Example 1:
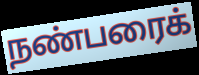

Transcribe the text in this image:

நண்பரைக்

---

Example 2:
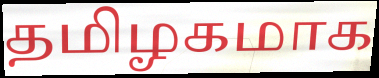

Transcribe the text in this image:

தமிழகமாக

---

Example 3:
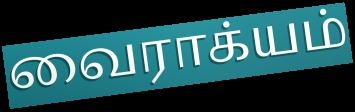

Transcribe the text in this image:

வைராக்யம்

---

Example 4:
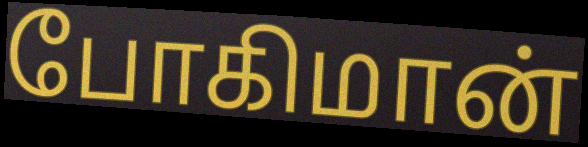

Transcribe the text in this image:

போகிமான்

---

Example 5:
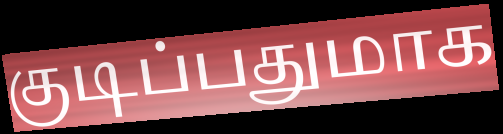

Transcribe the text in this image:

குடிப்பதுமாக